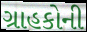
ગ્રાહકોની